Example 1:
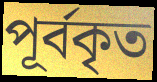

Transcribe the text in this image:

পূর্বকৃত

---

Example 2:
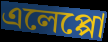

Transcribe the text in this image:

এলেপ্পো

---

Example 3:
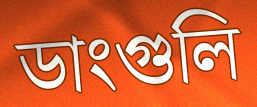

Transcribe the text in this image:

ডাংগুলি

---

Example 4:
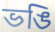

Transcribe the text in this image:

ভঙি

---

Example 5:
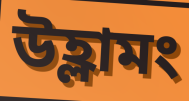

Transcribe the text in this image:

উহ্লামং